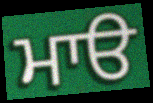
ਮਾੳ